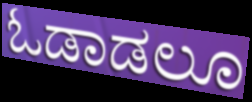
ಓಡಾಡಲೂ